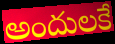
అందులకే